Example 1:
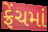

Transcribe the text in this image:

ફ્રેંચમાં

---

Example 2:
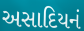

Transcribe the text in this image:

અસાદિયનં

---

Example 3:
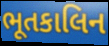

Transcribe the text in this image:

ભૂતકાલિન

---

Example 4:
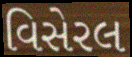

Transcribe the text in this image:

વિસેરલ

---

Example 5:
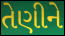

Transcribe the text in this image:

તેણીને